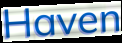
Haven